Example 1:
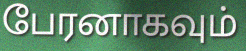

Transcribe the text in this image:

பேரனாகவும்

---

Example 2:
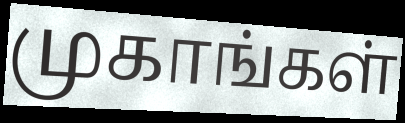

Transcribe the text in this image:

முகாங்கள்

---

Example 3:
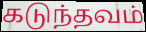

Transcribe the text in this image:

கடுந்தவம்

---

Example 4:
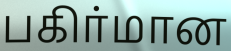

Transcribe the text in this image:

பகிர்மான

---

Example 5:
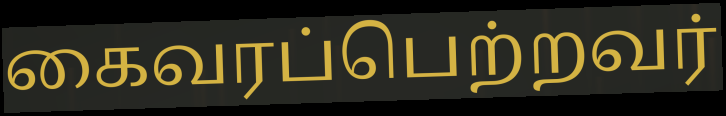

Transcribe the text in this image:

கைவரப்பெற்றவர்